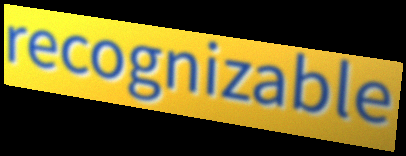
recognizable